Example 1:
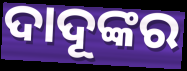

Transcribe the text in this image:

ଦାଦୂଙ୍କର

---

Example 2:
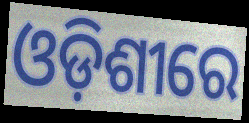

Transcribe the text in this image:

ଓଡ଼ିଶୀରେ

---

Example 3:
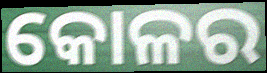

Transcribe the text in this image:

କୋଳର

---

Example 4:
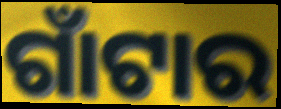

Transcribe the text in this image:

ଗାଁଟାର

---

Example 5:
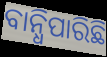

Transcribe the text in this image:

ବାନ୍ଧିପାରିଛି